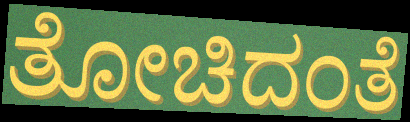
ತೋಚಿದಂತೆ